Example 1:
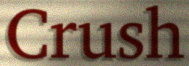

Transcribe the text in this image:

Crush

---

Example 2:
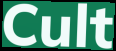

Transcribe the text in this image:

Cult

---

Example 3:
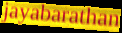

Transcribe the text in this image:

jayabarathan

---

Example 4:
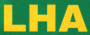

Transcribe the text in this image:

LHA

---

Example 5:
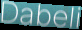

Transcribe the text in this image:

Dabeli